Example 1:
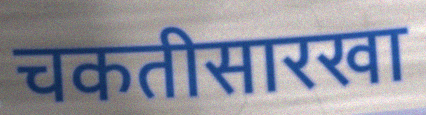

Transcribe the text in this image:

चकतीसारखा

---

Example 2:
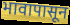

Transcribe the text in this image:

भावापासून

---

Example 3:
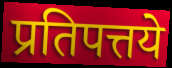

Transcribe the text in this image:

प्रतिपत्तये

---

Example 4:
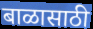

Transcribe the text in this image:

बाळासाठी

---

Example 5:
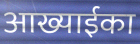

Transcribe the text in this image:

आख्याईका